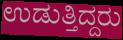
ಉಡುತ್ತಿದ್ದರು